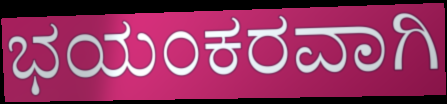
ಭಯಂಕರವಾಗಿ